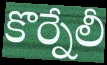
కొర్నేలీ